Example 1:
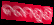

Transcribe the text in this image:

କରମଶୁଣି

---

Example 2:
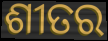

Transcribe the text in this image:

ଶୀତର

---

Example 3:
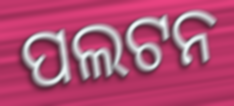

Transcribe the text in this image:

ପଲଟନ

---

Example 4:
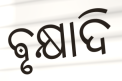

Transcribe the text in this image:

ଵୃକ୍ଷାଦି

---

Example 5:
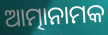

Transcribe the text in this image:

ଆତ୍ମାନାମକ